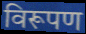
विरूपण